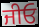
ਜੀਓ